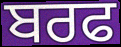
ਬਰਫ